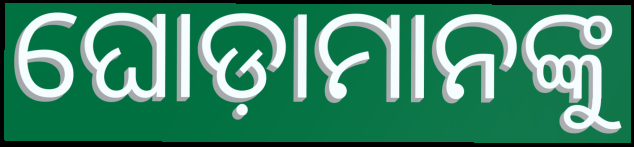
ଘୋଡ଼ାମାନଙ୍କୁ